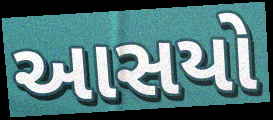
આસયો